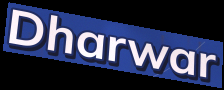
Dharwar